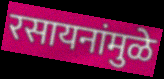
रसायनांमुळे